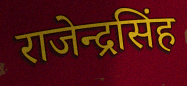
राजेन्द्रसिंह